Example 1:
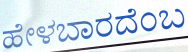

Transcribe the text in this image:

ಹೇಳಬಾರದೆಂಬ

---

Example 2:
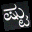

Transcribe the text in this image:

ಷ್ಟು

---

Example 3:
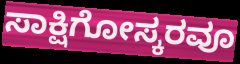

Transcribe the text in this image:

ಸಾಕ್ಷಿಗೋಸ್ಕರವೂ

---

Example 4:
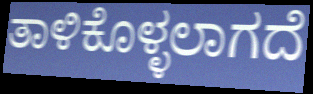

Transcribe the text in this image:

ತಾಳಿಕೊಳ್ಳಲಾಗದೆ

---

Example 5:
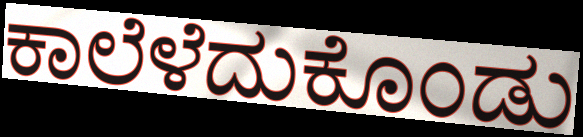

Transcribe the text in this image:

ಕಾಲೆಳೆದುಕೊಂಡು